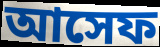
আসেফ